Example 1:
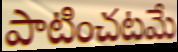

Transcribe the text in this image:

పాటించటమే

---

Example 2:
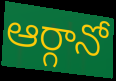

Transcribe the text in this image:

ఆర్గానో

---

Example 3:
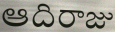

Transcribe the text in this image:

ఆదిరాజు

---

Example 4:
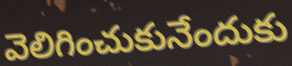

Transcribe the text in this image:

వెలిగించుకునేందుకు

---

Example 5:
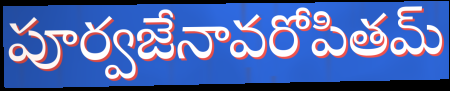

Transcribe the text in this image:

పూర్వజేనావరోపితమ్